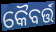
କୈବର୍ତ୍ତ